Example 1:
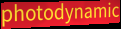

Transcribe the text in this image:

photodynamic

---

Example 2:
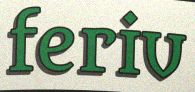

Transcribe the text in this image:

feriu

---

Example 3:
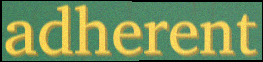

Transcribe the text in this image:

adherent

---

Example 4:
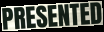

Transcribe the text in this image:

PRESENTED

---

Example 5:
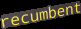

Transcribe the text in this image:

recumbent